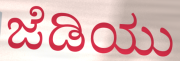
ಜೆಡಿಯು